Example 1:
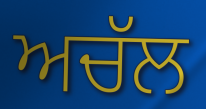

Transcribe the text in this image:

ਅਚੱਲ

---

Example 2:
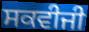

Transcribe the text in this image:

ਸਕਵੀਜੀ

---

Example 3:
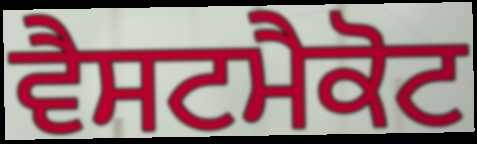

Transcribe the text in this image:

ਵੈਸਟਮੈਕੋਟ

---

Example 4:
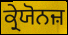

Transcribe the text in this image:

ਕ੍ਰੇਯੋਨਜ਼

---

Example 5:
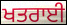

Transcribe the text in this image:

ਖਤਰਾਈ